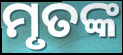
ମୃତଙ୍କ